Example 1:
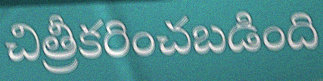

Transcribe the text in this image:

చిత్రీకరించబడింది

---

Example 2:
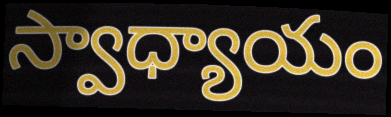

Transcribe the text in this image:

స్వాధ్యాయం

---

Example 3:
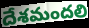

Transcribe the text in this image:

దేశమందలి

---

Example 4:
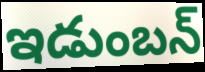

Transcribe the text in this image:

ఇడుంబన్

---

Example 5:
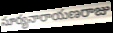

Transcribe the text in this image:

సూర్యనారాయణరాజు